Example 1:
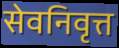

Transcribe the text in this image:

सेवनिवृत्त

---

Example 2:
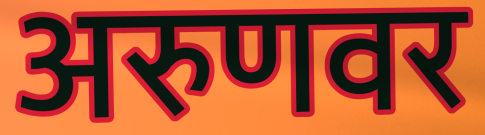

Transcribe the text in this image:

अरुणवर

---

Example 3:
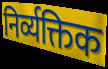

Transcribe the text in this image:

निर्व्यक्तिक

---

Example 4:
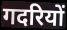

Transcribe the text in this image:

गदरियों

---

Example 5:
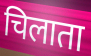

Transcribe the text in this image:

चिलाता